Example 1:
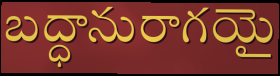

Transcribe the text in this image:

బద్ధానురాగయై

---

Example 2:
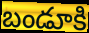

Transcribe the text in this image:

బండూకి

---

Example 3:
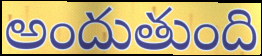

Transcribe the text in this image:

అందుతుంది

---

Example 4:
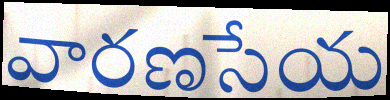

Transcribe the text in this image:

వారణసేయ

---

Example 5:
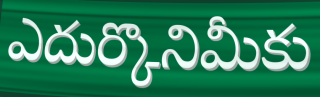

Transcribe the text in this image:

ఎదుర్కొనిమీకు